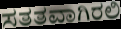
ಸತತವಾಗಿರಲಿ